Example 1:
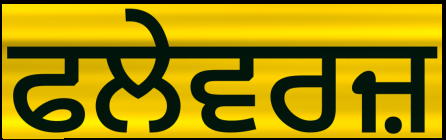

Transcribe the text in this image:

ਫਲੇਵਰਜ਼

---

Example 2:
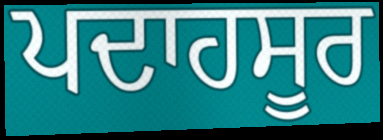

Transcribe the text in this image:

ਪਦਾਹਸੂਰ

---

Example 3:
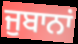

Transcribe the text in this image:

ਜੁਬਾਨਾਂ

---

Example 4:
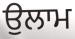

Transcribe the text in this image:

ਉਲਾਮ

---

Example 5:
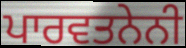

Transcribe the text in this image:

ਪਾਰਵਤਨੇਨੀ